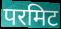
परमिट